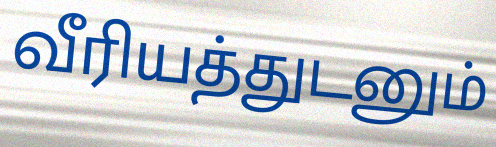
வீரியத்துடனும்